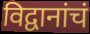
विद्वानांचं